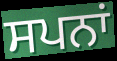
ਸਪਨਾਂ